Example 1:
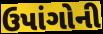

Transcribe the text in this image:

ઉપાંગોની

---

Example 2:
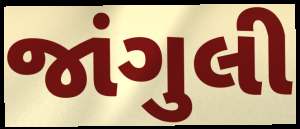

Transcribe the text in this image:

જાંગુલી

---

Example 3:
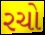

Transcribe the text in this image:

રચો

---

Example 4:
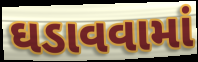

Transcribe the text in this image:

ઘડાવવામાં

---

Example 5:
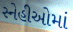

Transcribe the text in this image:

સ્નેહીઓમાં